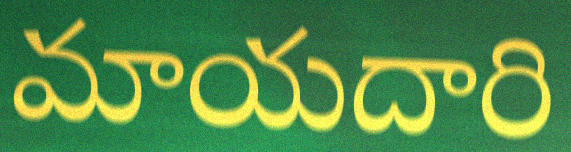
మాయదారి